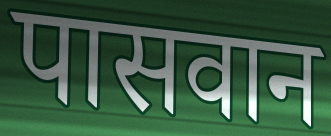
पासवान